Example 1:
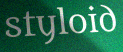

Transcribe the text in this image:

styloid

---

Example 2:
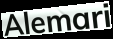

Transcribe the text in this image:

Alemari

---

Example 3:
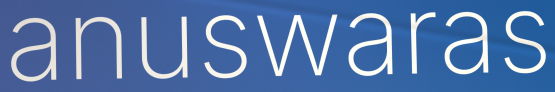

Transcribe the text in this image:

anuswaras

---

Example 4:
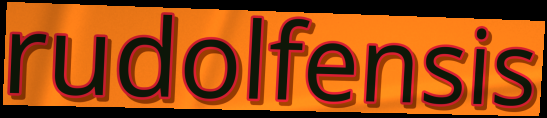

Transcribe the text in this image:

rudolfensis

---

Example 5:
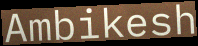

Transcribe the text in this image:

Ambikesh